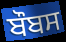
ਬੌਬਸ